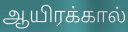
ஆயிரக்கால்